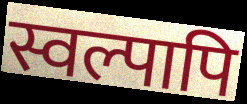
स्वल्पापि